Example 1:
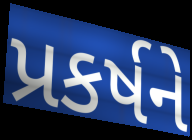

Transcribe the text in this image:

પ્રકર્ષને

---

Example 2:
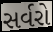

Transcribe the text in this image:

સર્વરો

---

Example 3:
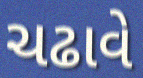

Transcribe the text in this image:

ચઢાવે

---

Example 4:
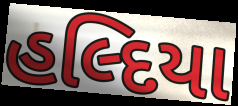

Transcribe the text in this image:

હલ્દિયા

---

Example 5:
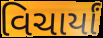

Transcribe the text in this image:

વિચાર્યાં